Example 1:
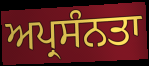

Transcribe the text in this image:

ਅਪ੍ਰਸੰਨਤਾ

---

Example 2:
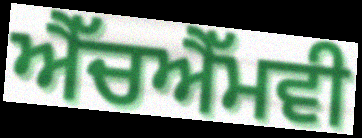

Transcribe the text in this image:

ਐੱਚਐੱਮਵੀ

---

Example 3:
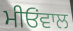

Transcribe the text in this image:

ਮੀਓਂਵਾਲ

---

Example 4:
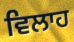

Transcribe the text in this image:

ਵਿਲਾਹ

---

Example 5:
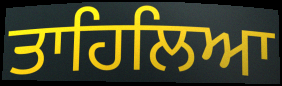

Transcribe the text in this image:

ਤਾਹਿਲਿਆ